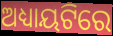
ଅଧ୍ୟାୟଟିରେ